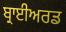
ਬ੍ਰਾਈਅਰਡ